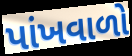
પાંખવાળો